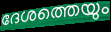
ദേശത്തെയും